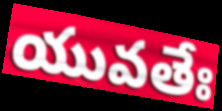
యువతేః